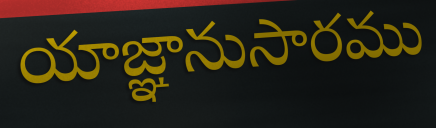
యాజ్ఞానుసారము